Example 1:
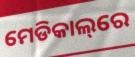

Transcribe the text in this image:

ମେଡିକାଲ୍‌ରେ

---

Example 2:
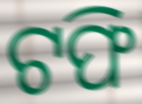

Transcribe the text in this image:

ଟଫି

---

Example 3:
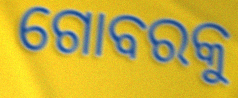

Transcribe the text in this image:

ଗୋବରକୁ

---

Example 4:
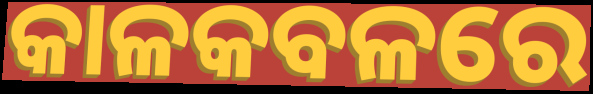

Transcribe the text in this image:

କାଳକବଳରେ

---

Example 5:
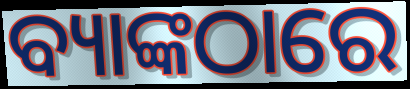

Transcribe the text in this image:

ବ୍ୟାଙ୍କଠାରେ